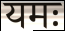
यमः